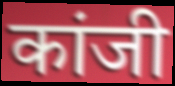
कांजी